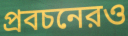
প্রবচনেরও